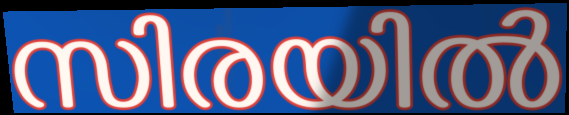
സിരയിൽ